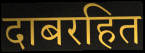
दाबरहित